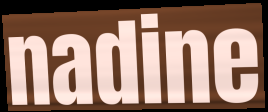
nadine